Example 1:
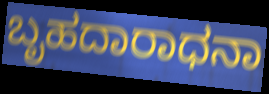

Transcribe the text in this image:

ಬೃಹದಾರಾಧನಾ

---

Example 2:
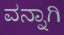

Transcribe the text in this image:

ವನ್ನಾಗಿ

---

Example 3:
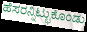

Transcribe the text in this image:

ಹೆಸರನ್ನಿಟ್ಟುಕೊಂಡು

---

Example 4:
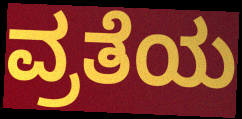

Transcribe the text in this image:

ವ್ರತೆಯ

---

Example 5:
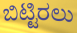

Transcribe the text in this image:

ಬಿಟ್ಟಿರಲು